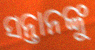
ସନ୍ତାନଙ୍କୁ